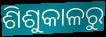
ଶିଶୁକାଳରୁ